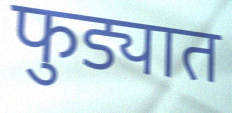
फुड्यात